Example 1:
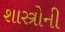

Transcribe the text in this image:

શાસ્ત્રોની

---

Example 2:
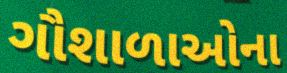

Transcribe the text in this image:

ગૌશાળાઓના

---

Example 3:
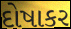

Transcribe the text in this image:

દોષાકર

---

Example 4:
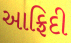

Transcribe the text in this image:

આફ્રિદી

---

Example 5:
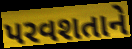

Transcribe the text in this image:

પરવશતાને